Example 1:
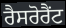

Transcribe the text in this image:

ਰੈਸਰੋਰੈਂਟ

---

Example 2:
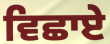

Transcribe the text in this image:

ਵਿਛਾਏ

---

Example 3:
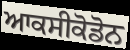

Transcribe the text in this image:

ਆਕਸੀਕੋਡੋਨ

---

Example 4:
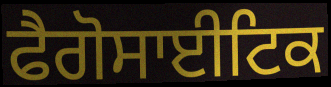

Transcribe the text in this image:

ਫੈਗੋਸਾਈਟਿਕ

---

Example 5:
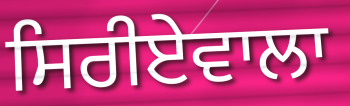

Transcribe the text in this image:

ਸਿਰੀਏਵਾਲਾ